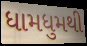
ધામધુમથી